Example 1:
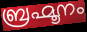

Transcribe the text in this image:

ബ്രഹ്മൂനം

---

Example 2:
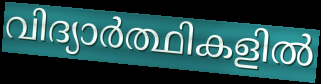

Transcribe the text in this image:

വിദ്യാർത്ഥികളിൽ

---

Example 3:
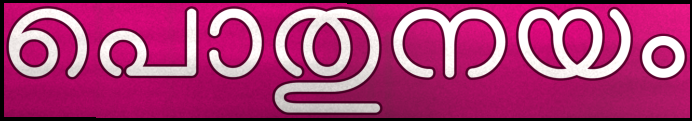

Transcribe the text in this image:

പൊതുനയം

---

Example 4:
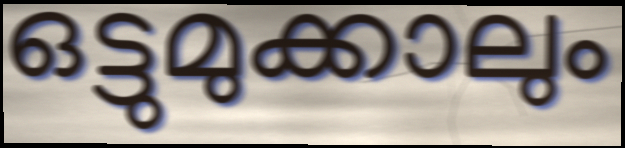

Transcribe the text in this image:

ഒട്ടുമുക്കാലും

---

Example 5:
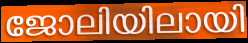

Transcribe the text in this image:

ജോലിയിലായി